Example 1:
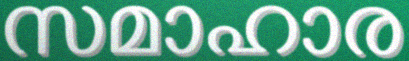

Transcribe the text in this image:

സമാഹാര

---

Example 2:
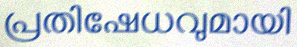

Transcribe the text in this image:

പ്രതിഷേധവുമായി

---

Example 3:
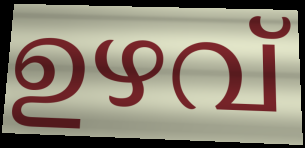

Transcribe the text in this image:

ഉഴവ്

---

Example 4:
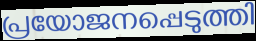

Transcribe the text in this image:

പ്രയോജനപ്പെടുത്തി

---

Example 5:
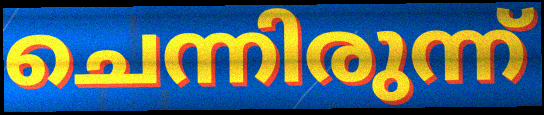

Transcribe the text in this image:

ചെന്നിരുന്ന്